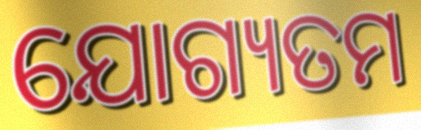
ଯୋଗ୍ୟତମ